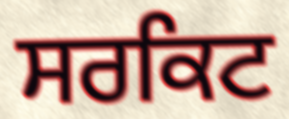
ਸਰਕਿਟ